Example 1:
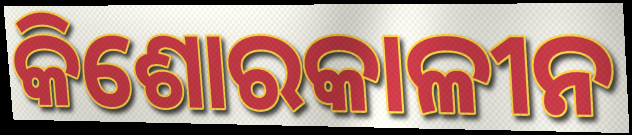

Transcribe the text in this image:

କିଶୋରକାଳୀନ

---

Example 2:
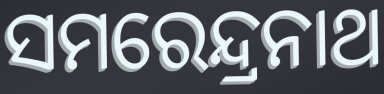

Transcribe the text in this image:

ସମରେନ୍ଦ୍ରନାଥ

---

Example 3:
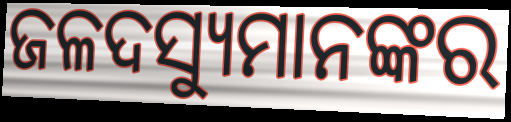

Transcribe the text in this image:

ଜଳଦସ୍ୟୁମାନଙ୍କର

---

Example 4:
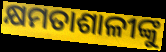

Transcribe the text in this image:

କ୍ଷମତାଶାଳୀଙ୍କୁ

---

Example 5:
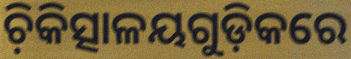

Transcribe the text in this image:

ଚ଼ିକିତ୍ସାଳୟଗୁଡ଼ିକରେ